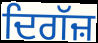
ਦਿਗੱਜ਼